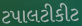
ટપાલટીકીટ